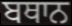
ਬਥਾਨ